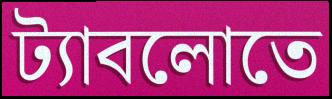
ট্যাবলোতে